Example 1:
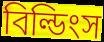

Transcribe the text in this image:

বিল্ডিংস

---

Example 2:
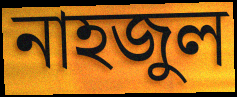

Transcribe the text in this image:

নাহজুল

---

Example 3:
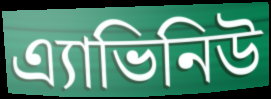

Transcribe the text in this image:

এ্যাভিনিউ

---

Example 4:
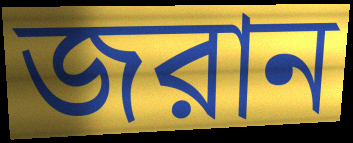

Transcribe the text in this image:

জরান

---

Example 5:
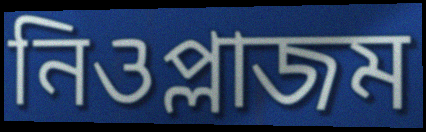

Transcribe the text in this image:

নিওপ্লাজম